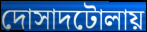
দোসাদটোলায়